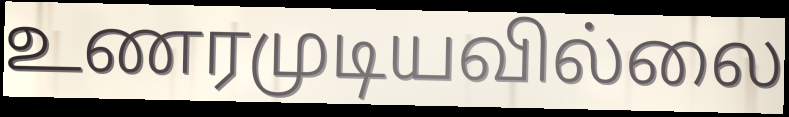
உணரமுடியவில்லை